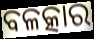
ବଳତ୍କାର